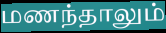
மணந்தாலும்